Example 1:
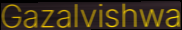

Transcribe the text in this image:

Gazalvishwa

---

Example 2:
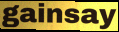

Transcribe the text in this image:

gainsay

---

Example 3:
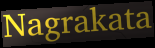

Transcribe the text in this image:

Nagrakata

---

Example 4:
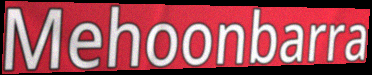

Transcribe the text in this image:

Mehoonbarra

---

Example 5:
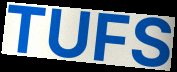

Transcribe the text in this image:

TUFS